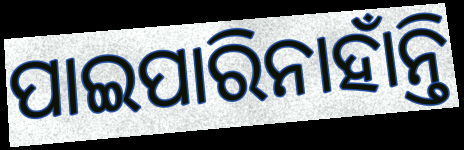
ପାଇପାରିନାହାଁନ୍ତି